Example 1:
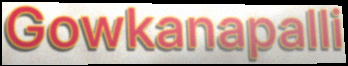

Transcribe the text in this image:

Gowkanapalli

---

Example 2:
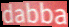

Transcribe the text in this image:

dabba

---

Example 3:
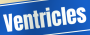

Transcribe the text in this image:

Ventricles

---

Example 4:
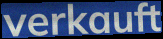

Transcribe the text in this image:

verkauft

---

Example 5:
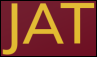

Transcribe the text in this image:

JAT